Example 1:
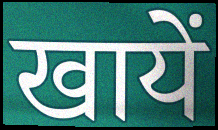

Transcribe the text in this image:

खायें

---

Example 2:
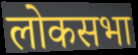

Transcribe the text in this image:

लोकसभा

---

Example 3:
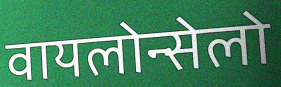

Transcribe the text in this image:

वायलोन्सेलो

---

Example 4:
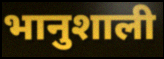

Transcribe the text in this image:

भानुशाली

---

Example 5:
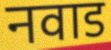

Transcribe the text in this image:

नवाड